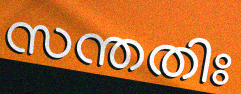
സന്തതിഃ